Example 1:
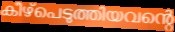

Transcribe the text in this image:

കീഴ്പെടുത്തിയവന്റെ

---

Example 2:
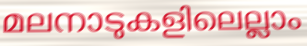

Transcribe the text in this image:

മലനാടുകളിലെല്ലാം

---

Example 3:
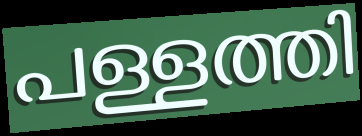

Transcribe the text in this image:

പള്ളത്തി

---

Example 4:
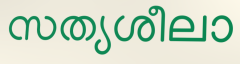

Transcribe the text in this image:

സത്യശീലാ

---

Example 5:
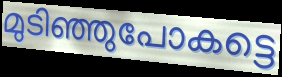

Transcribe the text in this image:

മുടിഞ്ഞുപോകട്ടെ